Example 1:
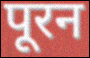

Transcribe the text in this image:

पूरन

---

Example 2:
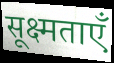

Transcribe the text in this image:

सूक्ष्मताएँ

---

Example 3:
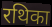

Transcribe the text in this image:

रथिका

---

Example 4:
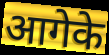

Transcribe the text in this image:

आगेके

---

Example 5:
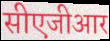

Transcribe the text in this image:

सीएजीआर